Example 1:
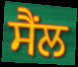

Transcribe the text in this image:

ਸੈਂਲ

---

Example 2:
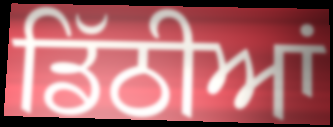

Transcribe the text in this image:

ਡਿੱਠੀਆਂ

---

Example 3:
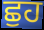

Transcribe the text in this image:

ਛੁਹ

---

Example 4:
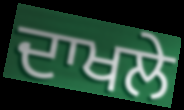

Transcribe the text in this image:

ਦਾਖਲੇ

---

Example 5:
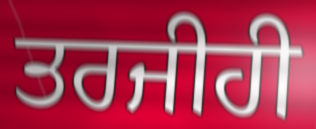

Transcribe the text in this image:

ਤਰਜੀਹੀ